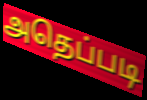
அதெப்படி